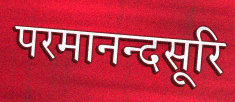
परमानन्दसूरि